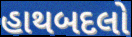
હાથબદલો